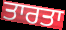
ਤਾਰਤਾ